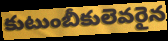
కుటుంబీకులెవరైన